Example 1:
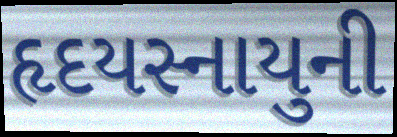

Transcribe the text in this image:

હૃદયસ્નાયુની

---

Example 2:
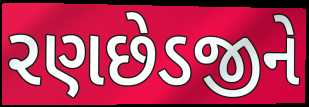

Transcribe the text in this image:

રણછેડજીને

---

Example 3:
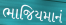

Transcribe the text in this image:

ભાજિયમાનં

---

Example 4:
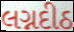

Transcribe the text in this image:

લગ્નદીઠ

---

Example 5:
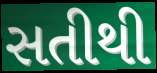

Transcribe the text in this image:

સતીથી